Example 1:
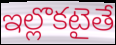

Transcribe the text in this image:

ఇల్లొకటైతే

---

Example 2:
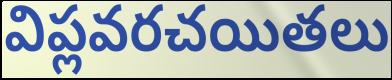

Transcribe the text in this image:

విప్లవరచయితలు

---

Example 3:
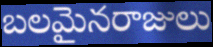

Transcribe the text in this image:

బలమైనరాజులు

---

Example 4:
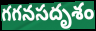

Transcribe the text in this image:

గగనసదృశం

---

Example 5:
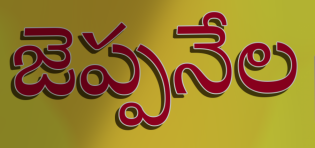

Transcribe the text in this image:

జెప్పనేల